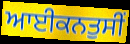
ਆਈਕਨਤੁਸੀਂ